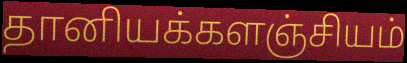
தானியக்களஞ்சியம்